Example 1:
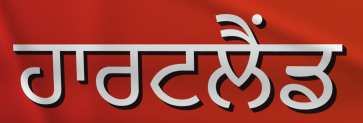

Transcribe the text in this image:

ਹਾਰਟਲੈਂਡ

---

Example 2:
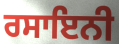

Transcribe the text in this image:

ਰਸਾਇਨੀ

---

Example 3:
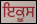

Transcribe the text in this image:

ਇਕੂਸ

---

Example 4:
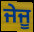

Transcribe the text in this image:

ਜੇਜੂ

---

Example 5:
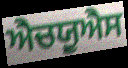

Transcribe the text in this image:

ਐਚਯੂਐਸ